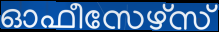
ഓഫീസേഴ്സ്